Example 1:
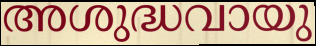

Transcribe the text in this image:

അശുദ്ധവായു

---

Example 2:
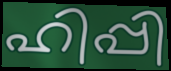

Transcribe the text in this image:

ഹിപ്പി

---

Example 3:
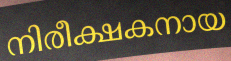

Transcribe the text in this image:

നിരീക്ഷകനായ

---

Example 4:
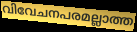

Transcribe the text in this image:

വിവേചനപരമല്ലാത്ത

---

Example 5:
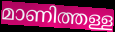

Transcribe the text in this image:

മാണിത്തള്ള